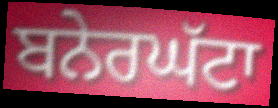
ਬਨੇਰਘੱਟਾ